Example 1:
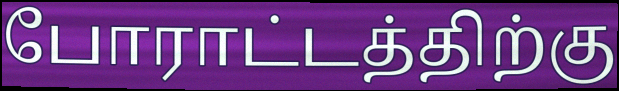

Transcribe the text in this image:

போராட்டத்திற்கு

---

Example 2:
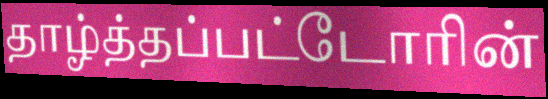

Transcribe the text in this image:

தாழ்த்தப்பட்டோரின்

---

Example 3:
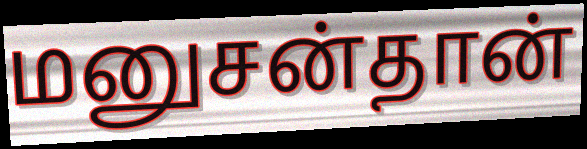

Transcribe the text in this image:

மனுசன்தான்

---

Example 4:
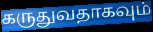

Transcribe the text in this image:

கருதுவதாகவும்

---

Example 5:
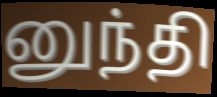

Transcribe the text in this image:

னுந்தி